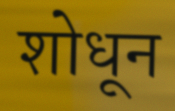
शोधून